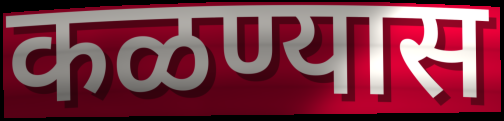
कळण्यास